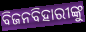
ବିଜନବିହାରୀଙ୍କୁ